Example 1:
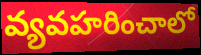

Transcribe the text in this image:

వ్యవహరించాలో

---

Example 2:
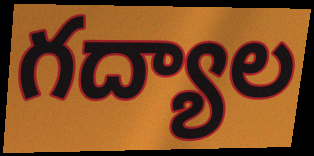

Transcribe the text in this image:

గద్యాల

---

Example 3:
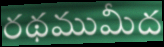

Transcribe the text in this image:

రథముమీద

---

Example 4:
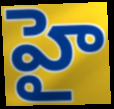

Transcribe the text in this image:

హై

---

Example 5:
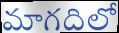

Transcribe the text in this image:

మాగదిలో